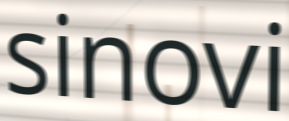
sinovi